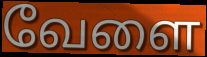
வேளை